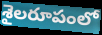
శైలరూపంలో